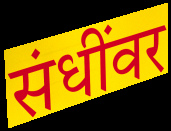
संधींवर